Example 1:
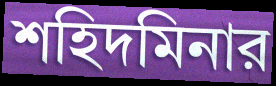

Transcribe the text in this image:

শহিদমিনার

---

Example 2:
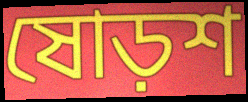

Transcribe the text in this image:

ষোড়শ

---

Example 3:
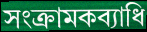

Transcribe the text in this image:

সংক্রামকব্যাধি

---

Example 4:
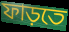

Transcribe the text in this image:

ফাড়তে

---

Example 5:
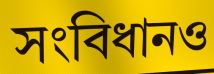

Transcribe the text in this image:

সংবিধানও